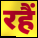
रहैं